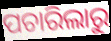
ପଚାରିଲାରୁ